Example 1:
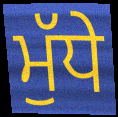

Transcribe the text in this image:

ਮੁੱਧੇ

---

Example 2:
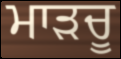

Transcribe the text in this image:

ਮਾੜਚੂ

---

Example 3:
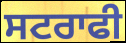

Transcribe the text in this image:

ਸਟਰਾਫੀ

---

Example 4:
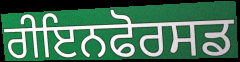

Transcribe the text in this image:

ਰੀਇਨਫੋਰਸਡ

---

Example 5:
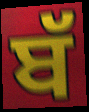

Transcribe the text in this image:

ਬੱ